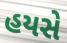
હયસે